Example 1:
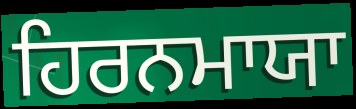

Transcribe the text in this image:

ਹਿਰਨਮਾਯਾ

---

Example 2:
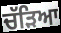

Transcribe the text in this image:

ਚੱੜਿਆ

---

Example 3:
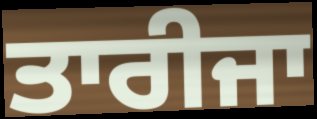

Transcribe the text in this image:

ਤਾਰੀਜਾ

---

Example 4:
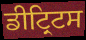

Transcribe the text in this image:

ਡੀਟ੍ਰਿਟਸ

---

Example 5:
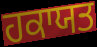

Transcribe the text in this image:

ਹਕਾਯਤ